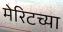
मेरिटच्या